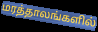
மரத்தாலங்களில்